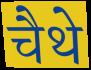
चैथे